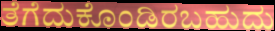
ತೆಗೆದುಕೊಂಡಿರಬಹುದು